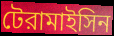
টেরামাইসিন